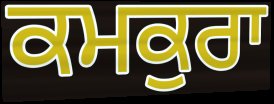
ਕਮਕੁਰਾ